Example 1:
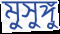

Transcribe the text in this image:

মুসুঙ্গু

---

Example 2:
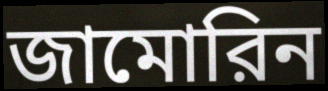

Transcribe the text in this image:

জামোরিন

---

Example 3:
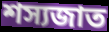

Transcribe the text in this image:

শস্যজাত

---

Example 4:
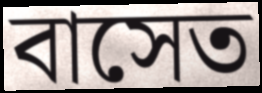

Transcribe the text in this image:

বাসেত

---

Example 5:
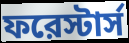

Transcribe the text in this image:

ফরেস্টার্স